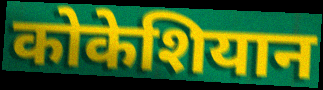
कोकेशियान